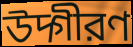
উদ্গীরণ